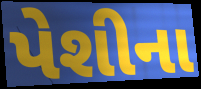
પેશીના